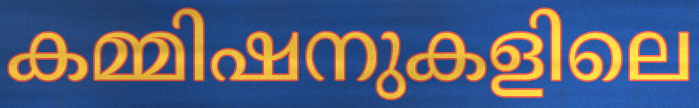
കമ്മിഷനുകളിലെ